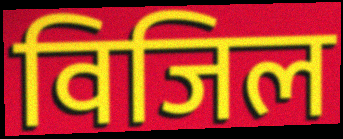
विजिल